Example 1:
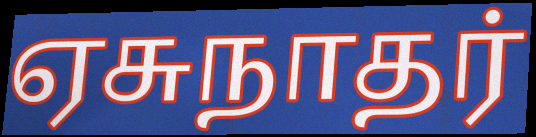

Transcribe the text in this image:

ஏசுநாதர்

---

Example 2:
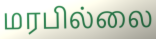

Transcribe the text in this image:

மரபில்லை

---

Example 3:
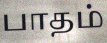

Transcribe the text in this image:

பாதம்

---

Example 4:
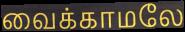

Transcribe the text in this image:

வைக்காமலே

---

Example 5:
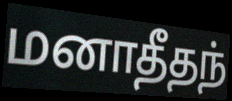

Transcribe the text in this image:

மனாதீதந்